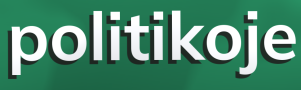
politikoje